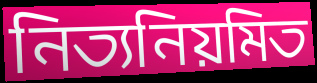
নিত্যনিয়মিত